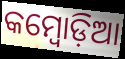
କମ୍ୱୋଡ଼ିଆ